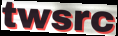
twsrc